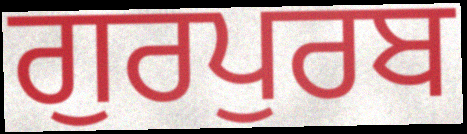
ਗੁਰਪੁਰਬ